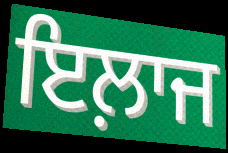
ਇਲ਼ਾਜ